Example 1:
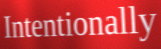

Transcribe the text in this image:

Intentionally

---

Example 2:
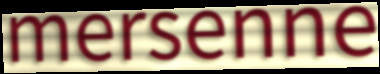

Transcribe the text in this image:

mersenne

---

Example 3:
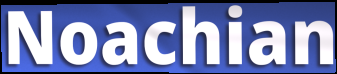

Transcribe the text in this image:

Noachian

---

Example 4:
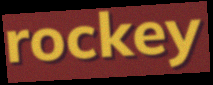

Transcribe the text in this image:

rockey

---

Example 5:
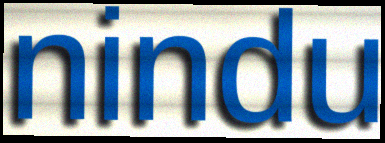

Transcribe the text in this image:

nindu